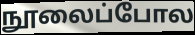
நூலைப்போல